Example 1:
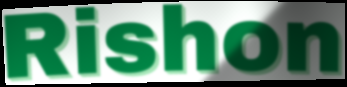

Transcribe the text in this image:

Rishon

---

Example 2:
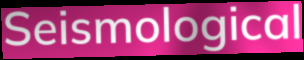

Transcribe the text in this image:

Seismological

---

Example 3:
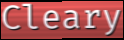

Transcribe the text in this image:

Cleary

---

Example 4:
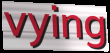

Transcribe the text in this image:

vying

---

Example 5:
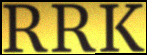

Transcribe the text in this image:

RRK